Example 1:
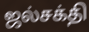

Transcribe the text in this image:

ஜல்சக்தி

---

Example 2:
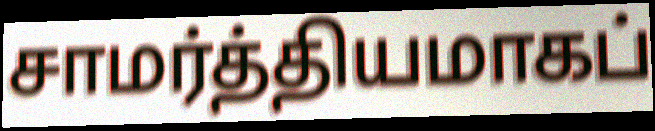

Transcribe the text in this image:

சாமர்த்தியமாகப்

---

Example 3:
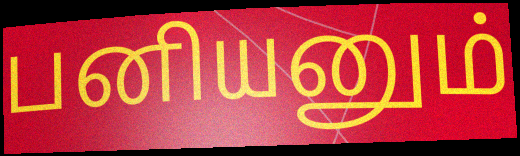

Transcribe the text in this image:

பனியனும்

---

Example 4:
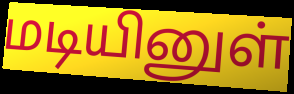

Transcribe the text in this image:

மடியினுள்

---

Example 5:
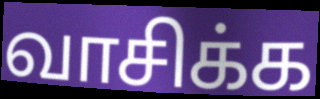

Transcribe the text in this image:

வாசிக்க